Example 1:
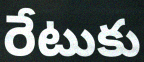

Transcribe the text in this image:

రేటుకు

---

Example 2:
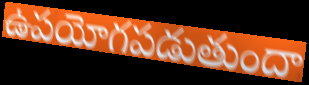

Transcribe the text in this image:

ఉపయోగపడుతుందా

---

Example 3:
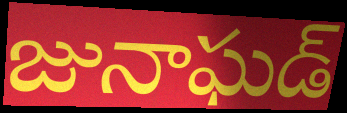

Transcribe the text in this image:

జునాఘడ్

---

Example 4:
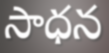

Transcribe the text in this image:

సాధన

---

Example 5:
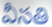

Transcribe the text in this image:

వీసతి